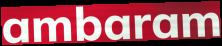
ambaram